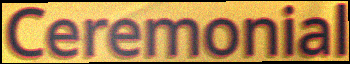
Ceremonial